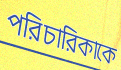
পরিচারিকাকে